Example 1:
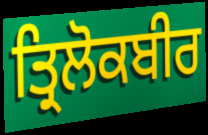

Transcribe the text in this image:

ਤ੍ਰਿਲੋਕਬੀਰ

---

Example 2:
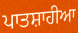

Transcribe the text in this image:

ਪਾਤਸ਼ਾਹੀਆ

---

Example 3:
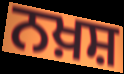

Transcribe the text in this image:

ਨਖ਼ਸ਼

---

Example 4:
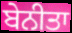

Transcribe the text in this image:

ਬੇਨੀਤਾ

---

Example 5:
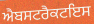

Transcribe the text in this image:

ਐਬਸਟਰੈਕਟਇਸ